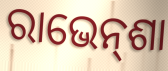
ରାଭେନ୍‌ଶା